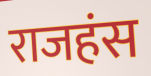
राजहंस